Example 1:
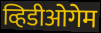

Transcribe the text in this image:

व्हिडीओगेम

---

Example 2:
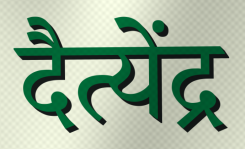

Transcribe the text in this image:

दैत्येंद्र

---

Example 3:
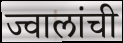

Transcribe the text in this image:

ज्वालांची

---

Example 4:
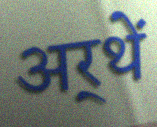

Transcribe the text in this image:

अर्थें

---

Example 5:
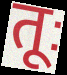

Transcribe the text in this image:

तूः